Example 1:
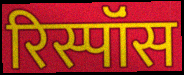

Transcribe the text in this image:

रिस्पॉंस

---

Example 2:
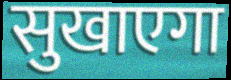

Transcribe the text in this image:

सुखाएगा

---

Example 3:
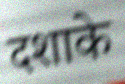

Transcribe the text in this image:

दशाके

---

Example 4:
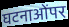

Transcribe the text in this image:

घटनाओंपर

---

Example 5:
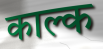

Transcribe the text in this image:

काल्क